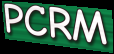
PCRM